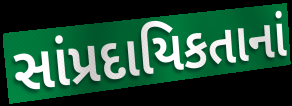
સાંપ્રદાયિકતાનાં